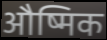
औष्मिक